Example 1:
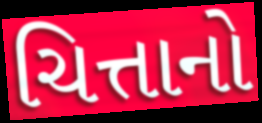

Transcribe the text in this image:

ચિત્તાનો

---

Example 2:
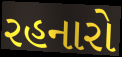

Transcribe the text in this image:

રહનારો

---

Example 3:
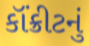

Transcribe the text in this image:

કૉંક્રીટનું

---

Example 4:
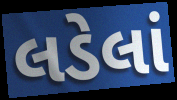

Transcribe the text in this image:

લડેલાં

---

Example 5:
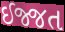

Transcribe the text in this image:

ઈજ્જત